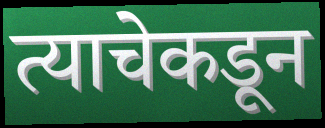
त्याचेकडून